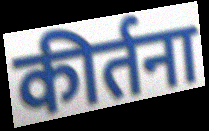
कीर्तना